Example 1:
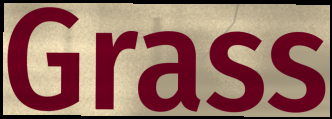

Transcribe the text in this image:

Grass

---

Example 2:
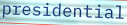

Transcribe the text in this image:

presidential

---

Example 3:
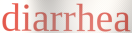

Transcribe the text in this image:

diarrhea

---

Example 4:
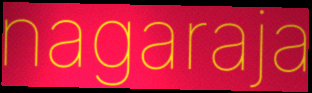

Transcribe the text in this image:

nagaraja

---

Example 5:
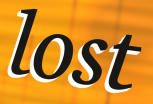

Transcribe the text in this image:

lost